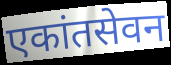
एकांतसेवन